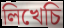
লিখেচি